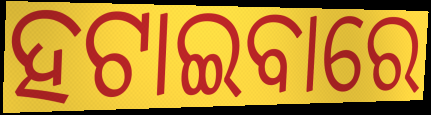
ହଟାଇବାରେ